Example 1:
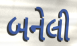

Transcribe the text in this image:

બનેલી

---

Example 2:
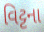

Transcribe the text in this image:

વિટ્ટના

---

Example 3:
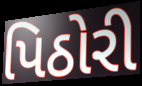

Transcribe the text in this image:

પિઠોરી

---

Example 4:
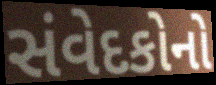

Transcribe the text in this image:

સંવેદકોનો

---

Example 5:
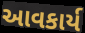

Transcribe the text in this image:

આવકાર્ય